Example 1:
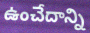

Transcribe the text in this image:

ఉంచేదాన్ని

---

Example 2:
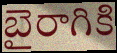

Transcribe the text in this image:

బైరాగికి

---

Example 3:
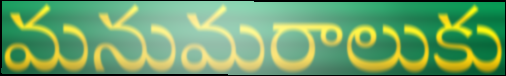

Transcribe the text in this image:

మనుమరాలుకు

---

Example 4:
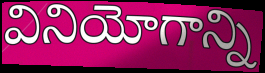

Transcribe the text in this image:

వినియోగాన్ని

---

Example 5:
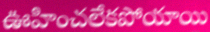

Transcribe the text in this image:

ఊహించలేకపోయాయి